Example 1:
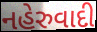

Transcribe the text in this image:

નહેરુવાદી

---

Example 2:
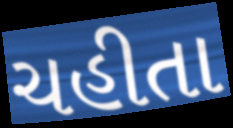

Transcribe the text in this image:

ચહીતા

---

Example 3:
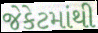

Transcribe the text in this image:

જેકેટમાંથી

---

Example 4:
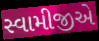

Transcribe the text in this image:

સ્વામીજીએ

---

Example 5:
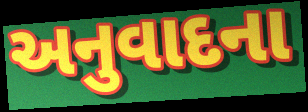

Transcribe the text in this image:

અનુવાદના